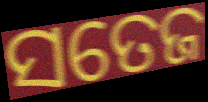
ସତେଜ